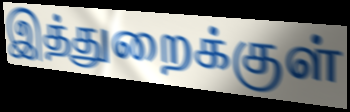
இத்துறைக்குள்